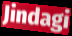
Jindagi